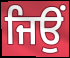
ਜਿਉਂ